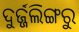
ଦୁର୍ଜ୍ଜଲିଙ୍ଗରୁ